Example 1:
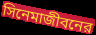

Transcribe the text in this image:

সিনেমাজীবনের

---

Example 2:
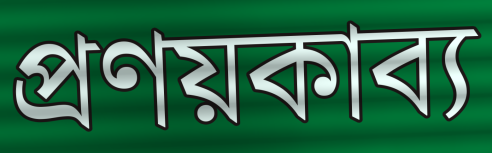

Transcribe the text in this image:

প্রণয়কাব্য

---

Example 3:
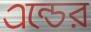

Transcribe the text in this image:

এন্ডের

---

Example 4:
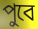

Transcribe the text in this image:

পুবে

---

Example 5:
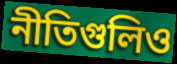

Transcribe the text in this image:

নীতিগুলিও